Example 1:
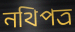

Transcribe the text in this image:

নথিপত্র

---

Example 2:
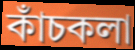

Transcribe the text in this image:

কাঁচকলা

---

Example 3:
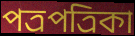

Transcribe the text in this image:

পত্রপত্রিকা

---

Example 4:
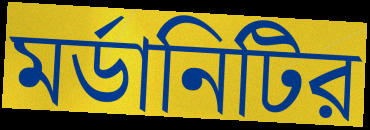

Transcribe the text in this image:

মর্ডানিটির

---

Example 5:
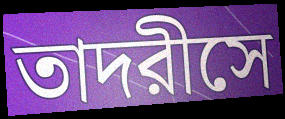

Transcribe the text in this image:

তাদরীসে